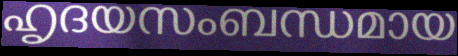
ഹൃദയസംബന്ധമായ